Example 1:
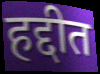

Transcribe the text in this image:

हद्दीत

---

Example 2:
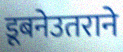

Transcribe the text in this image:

डूबनेउतराने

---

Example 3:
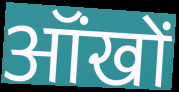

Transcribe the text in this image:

ऑंखों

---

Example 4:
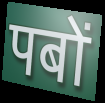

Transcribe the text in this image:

पबों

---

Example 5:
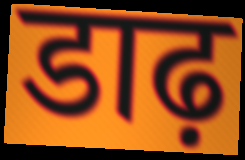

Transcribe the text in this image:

डाढ़